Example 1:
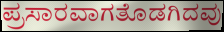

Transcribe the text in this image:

ಪ್ರಸಾರವಾಗತೊಡಗಿದವು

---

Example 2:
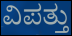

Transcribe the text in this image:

ವಿಪತ್ತು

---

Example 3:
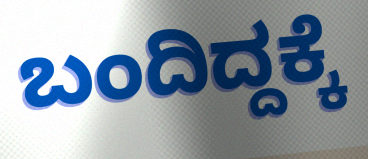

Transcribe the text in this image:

ಬಂದಿದ್ದಕ್ಕೆ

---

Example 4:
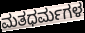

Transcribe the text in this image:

ಮತಧರ್ಮಗಳ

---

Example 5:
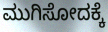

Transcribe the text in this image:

ಮುಗಿಸೋದಕ್ಕೆ